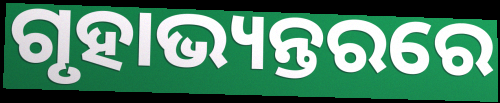
ଗୃହାଭ୍ୟନ୍ତରରେ